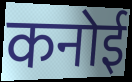
कनोई